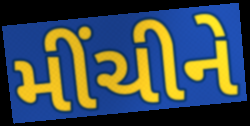
મીંચીને